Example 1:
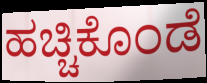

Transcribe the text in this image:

ಹಚ್ಚಿಕೊಂಡೆ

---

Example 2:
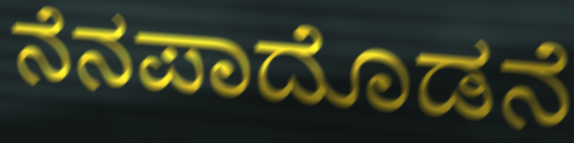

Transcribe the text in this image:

ನೆನಪಾದೊಡನೆ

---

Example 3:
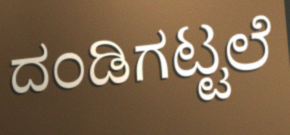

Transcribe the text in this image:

ದಂಡಿಗಟ್ಟಲೆ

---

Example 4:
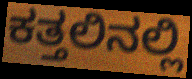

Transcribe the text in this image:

ಕತ್ತಲಿನಲ್ಲಿ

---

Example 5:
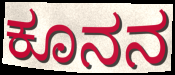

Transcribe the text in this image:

ಕೂನನ